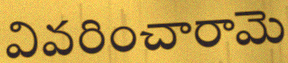
వివరించారామె